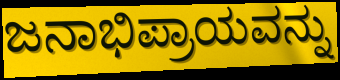
ಜನಾಭಿಪ್ರಾಯವನ್ನು